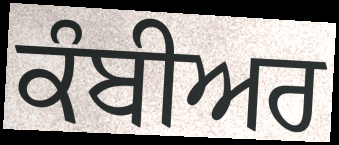
ਕੰਬੀਅਰ